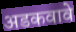
अडकवावे